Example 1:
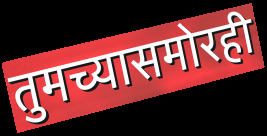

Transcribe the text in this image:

तुमच्यासमोरही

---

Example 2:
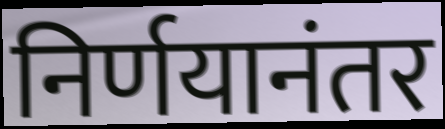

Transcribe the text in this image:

निर्णयानंतर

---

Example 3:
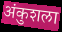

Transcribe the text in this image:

अंकुशला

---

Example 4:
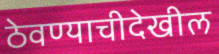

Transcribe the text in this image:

ठेवण्याचीदेखील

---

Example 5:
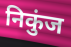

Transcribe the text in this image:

निकुंज